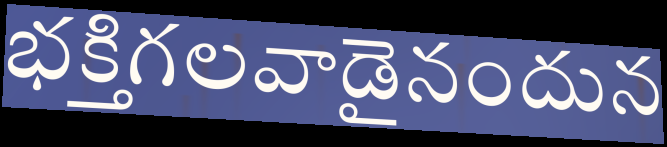
భక్తిగలవాడైనందున